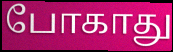
போகாது